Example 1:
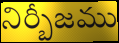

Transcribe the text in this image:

నిర్బీజము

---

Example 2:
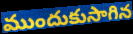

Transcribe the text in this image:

ముందుకుసాగిన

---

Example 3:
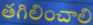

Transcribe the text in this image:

తగిలించాలి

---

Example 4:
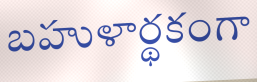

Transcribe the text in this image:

బహుళార్థకంగా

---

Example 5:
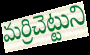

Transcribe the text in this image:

మర్రిచెట్టుని